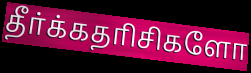
தீர்க்கதரிசிகளோ